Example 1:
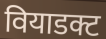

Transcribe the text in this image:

वियाडक्ट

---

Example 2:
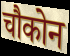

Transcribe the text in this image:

चौकोन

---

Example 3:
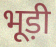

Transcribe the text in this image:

भूड़ी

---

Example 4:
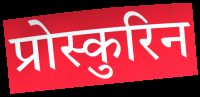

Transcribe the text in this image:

प्रोस्कुरिन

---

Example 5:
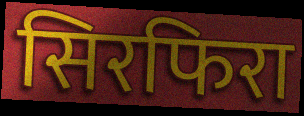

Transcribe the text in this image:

सिरफिरा